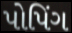
પોપિંગ